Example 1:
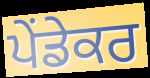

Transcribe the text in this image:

ਪੇਂਡੇਕਰ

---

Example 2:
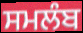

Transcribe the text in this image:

ਸਮਲੰਬ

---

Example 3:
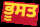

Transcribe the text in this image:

ਭੂਸਤ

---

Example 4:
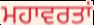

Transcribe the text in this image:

ਮਹਾਵਰਤਾਂ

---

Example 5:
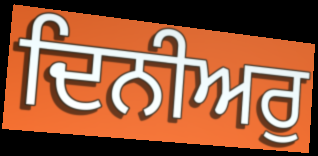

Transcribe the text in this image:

ਦਿਨੀਅਰੁ